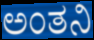
ಅಂತನಿ